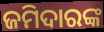
ଜମିଦାରଙ୍କ